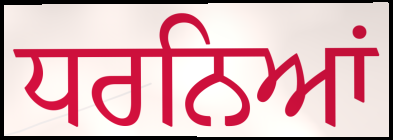
ਧਰਨਿਆਂ